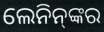
ଲେନିନ୍‌ଙ୍କର